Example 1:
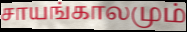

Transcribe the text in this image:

சாயங்காலமும்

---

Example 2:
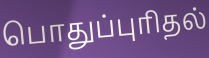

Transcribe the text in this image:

பொதுப்புரிதல்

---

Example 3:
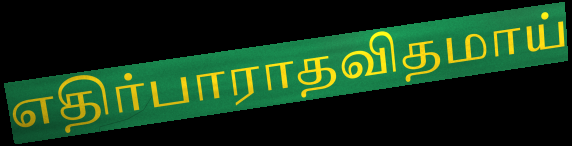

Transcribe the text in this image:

எதிர்பாராதவிதமாய்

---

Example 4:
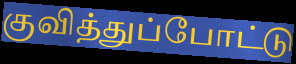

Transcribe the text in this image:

குவித்துப்போட்டு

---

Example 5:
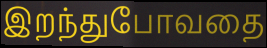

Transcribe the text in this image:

இறந்துபோவதை